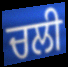
ਚਲੀ